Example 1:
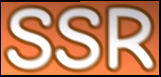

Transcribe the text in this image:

SSR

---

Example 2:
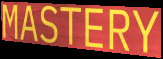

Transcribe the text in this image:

MASTERY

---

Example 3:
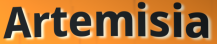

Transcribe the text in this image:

Artemisia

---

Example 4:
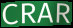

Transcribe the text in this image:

CRAR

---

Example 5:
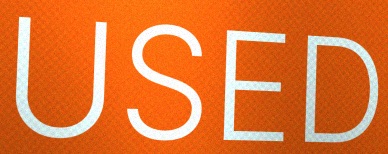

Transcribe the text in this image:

USED